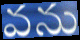
వను